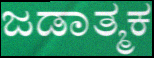
ಜಡಾತ್ಮಕ